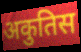
अकुतिस